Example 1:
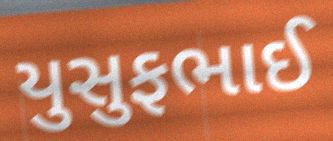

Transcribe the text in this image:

યુસુફભાઈ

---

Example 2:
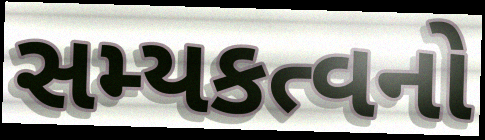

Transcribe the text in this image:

સમ્યકત્વનો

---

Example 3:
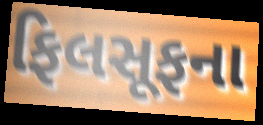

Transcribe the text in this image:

ફિલસૂફના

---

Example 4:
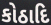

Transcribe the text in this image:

કોઠાદિ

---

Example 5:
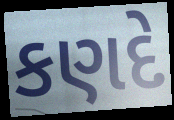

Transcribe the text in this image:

કણદે